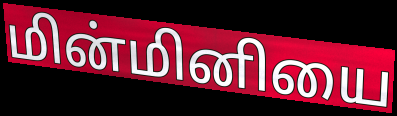
மின்மினியை